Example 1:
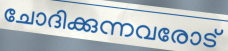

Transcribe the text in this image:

ചോദിക്കുന്നവരോട്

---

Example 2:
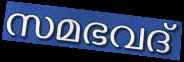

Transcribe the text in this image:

സമഭവദ്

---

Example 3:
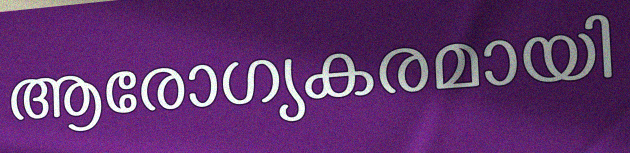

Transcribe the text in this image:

ആരോഗ്യകരമായി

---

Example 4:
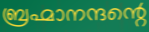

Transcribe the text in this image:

ബ്രഹ്മാനന്ദന്റെ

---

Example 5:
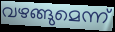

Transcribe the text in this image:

വഴങ്ങുമെന്ന്